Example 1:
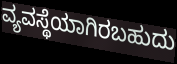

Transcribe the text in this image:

ವ್ಯವಸ್ಥೆಯಾಗಿರಬಹುದು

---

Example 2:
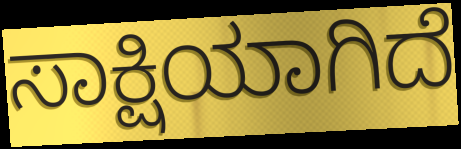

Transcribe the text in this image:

ಸಾಕ್ಷಿಯಾಗಿದೆ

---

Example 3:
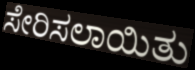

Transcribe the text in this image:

ಸೇರಿಸಲಾಯಿತು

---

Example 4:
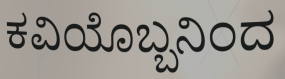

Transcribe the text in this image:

ಕವಿಯೊಬ್ಬನಿಂದ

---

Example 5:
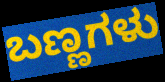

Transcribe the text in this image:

ಬಣ್ಣಗಳು